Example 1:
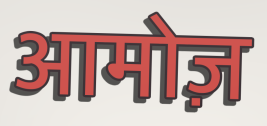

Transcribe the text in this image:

आमोज़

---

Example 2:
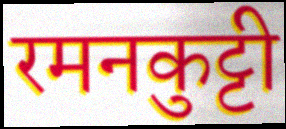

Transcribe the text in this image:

रमनकुट्टी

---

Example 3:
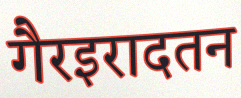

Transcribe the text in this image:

गैरइरादतन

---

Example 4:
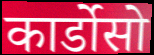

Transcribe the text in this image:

कार्डोसो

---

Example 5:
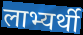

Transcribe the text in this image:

लाभ्यर्थी